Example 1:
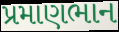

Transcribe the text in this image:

પ્રમાણભાન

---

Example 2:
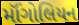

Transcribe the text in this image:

મૉંગોલિયન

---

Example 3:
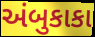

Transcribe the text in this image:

અંબુકાકા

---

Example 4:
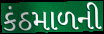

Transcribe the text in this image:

કંઠમાળની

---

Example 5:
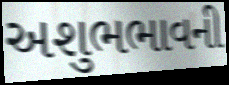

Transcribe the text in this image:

અશુભભાવની